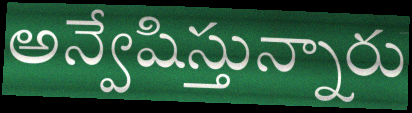
అన్వేషిస్తున్నారు